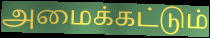
அமைக்கட்டும்